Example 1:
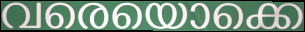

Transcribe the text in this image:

വരെയൊക്കെ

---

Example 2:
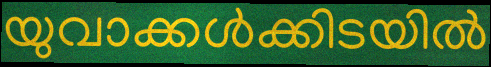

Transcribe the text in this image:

യുവാക്കൾക്കിടയിൽ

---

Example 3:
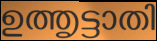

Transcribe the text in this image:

ഉത്തൃട്ടാതി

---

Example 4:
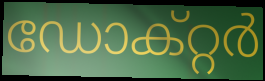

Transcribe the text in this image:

ഡോക്റ്റർ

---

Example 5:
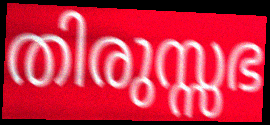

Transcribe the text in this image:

തിരുസ്സഭ